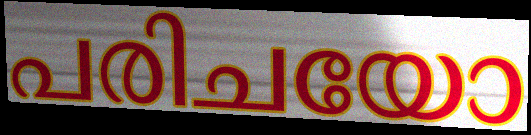
പരിചയോ